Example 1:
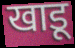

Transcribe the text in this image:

खाडू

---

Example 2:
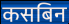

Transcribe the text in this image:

कसबिन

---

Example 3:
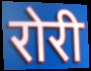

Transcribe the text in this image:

रोरी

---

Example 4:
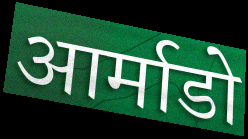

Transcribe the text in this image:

आर्माडो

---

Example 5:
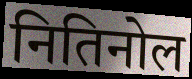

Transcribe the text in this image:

नितिनोल